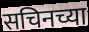
सचिनच्या